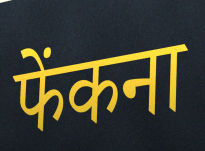
फेंकना